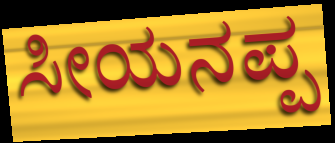
ಸೀಯನಪ್ಪ